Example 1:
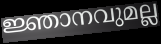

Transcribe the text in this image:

ജ്ഞാനവുമല്ല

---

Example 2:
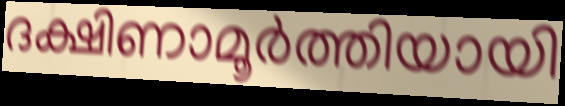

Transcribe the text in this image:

ദക്ഷിണാമൂർത്തിയായി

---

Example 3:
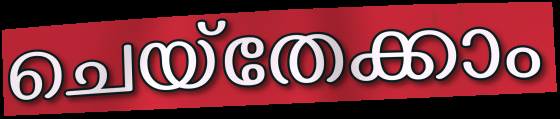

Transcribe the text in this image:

ചെയ്‌തേക്കാം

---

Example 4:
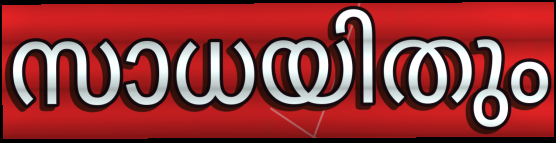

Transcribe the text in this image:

സാധയിതും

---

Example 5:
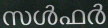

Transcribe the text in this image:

സൾഫർ